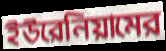
ইউরেনিয়ামের